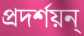
প্রদর্শয়ন্